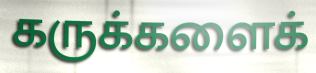
கருக்களைக்